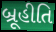
બ્રૂહીતિ